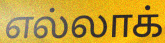
எல்லாக்